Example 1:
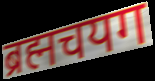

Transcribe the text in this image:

ब्रह्मचयग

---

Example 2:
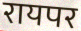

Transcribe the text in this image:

रायपर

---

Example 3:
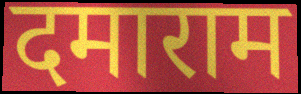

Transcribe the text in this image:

दमाराम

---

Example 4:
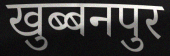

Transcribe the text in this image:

खुब्बनपुर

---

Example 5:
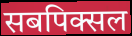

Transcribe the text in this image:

सबपिक्सल